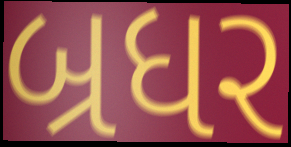
બ્રધર